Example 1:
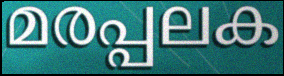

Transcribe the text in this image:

മരപ്പലക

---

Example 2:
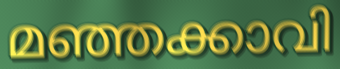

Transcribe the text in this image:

മഞ്ഞക്കാവി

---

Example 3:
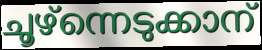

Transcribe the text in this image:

ചൂഴ്ന്നെടുക്കാന്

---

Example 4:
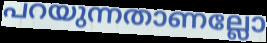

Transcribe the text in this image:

പറയുന്നതാണല്ലോ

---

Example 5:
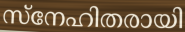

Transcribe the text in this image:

സ്നേഹിതരായി